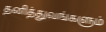
தனித்துவங்களும்